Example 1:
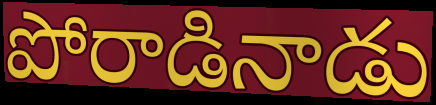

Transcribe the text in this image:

పోరాడినాడు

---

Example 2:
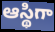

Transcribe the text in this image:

ఆస్థిగా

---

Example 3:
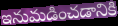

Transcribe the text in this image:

ఇనుమడించడానికి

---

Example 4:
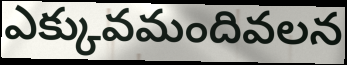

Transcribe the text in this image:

ఎక్కువమందివలన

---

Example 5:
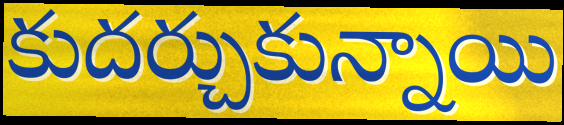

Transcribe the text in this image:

కుదర్చుకున్నాయి